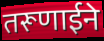
तरूणाईने